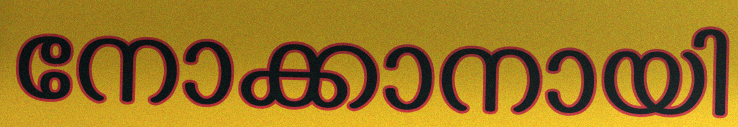
നോക്കാനായി